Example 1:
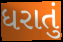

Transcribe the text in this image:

ધરાતું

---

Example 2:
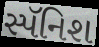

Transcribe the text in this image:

સ્પૅનિશ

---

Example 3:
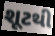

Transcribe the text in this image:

શૂટથી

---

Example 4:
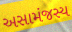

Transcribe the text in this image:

અસામંજસ્ય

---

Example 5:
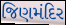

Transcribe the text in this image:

જિણમંદિર